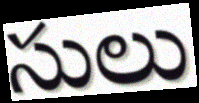
సులు